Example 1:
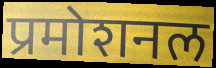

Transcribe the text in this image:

प्रमोशनल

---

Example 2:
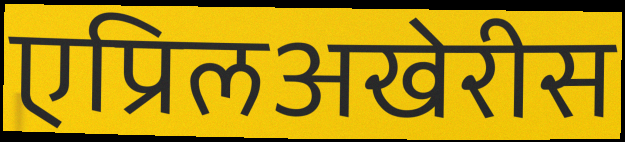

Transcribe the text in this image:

एप्रिलअखेरीस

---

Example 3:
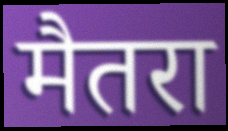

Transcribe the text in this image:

मैतरा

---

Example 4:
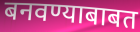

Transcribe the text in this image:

बनवण्याबाबत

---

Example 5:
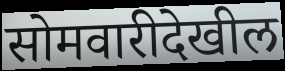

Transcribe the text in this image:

सोमवारीदेखील